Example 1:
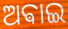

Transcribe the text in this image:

ଅଵାଇ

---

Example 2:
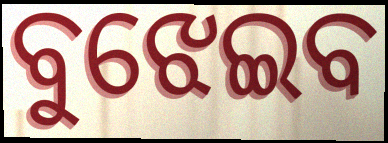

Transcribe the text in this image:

ବୁଝେଇବ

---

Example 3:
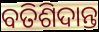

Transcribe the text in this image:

ବତିଶିଦାନ୍ତ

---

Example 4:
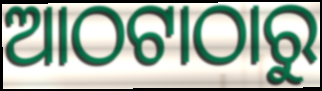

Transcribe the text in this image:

ଆଠଟାଠାରୁ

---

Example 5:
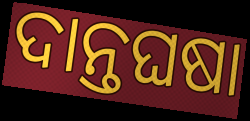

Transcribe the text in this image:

ଦାନ୍ତଘଷା